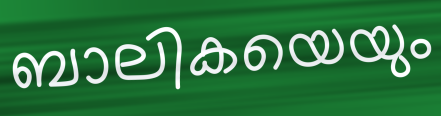
ബാലികയെയും